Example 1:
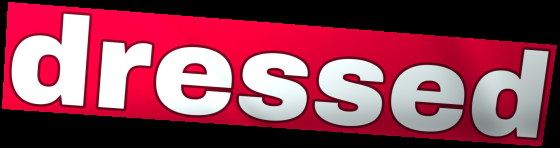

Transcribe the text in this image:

dressed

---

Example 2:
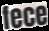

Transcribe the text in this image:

fece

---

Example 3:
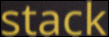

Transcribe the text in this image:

stack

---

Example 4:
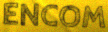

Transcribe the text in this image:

ENCOM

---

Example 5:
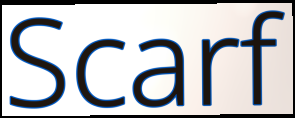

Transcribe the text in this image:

Scarf